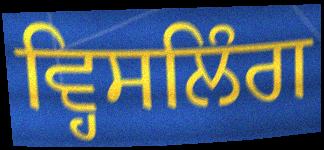
ਵ੍ਹਿਸਲਿੰਗ